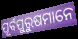
ପୂର୍ବପୁରୁଷମାନେ